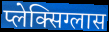
प्लेक्सिग्लास